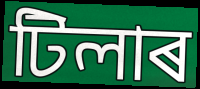
টিলাৰ